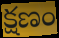
క్షణం